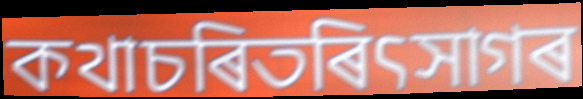
কথাচৰিতৰিৎসাগৰ